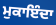
ਮੁਕਾਇੰਦਾ